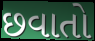
છવાતો